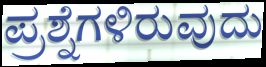
ಪ್ರಶ್ನೆಗಳಿರುವುದು